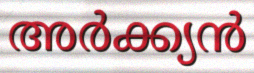
അർക്ക്യൻ